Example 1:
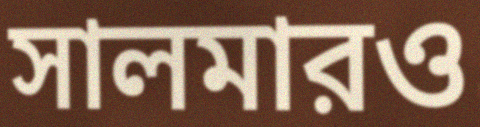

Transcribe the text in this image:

সালমারও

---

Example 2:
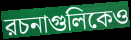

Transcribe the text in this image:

রচনাগুলিকেও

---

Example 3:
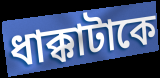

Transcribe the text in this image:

ধাক্কাটাকে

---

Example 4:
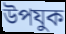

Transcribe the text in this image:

উপযুক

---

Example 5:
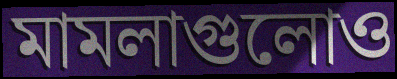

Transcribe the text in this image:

মামলাগুলোও